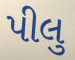
પીલુ